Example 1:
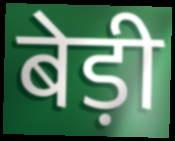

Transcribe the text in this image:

बेड़ी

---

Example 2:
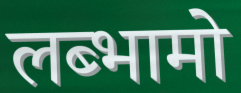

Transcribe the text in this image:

लब्भामो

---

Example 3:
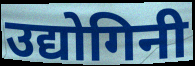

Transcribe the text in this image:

उद्योगिनी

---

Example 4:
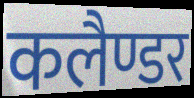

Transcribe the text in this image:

कलैण्डर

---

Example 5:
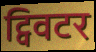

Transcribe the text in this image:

ट्विवटर